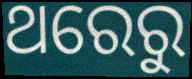
ଥରେରୁ